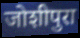
जोशीपुरा